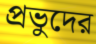
প্রভুদের